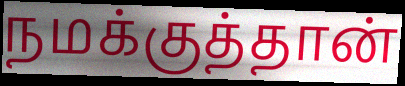
நமக்குத்தான்